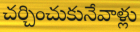
చర్చించుకునేవాళ్లు